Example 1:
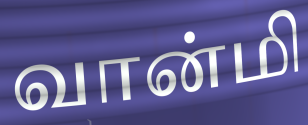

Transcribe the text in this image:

வான்மி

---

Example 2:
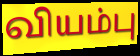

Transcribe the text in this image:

வியம்பு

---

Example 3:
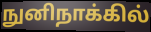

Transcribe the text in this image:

நுனிநாக்கில்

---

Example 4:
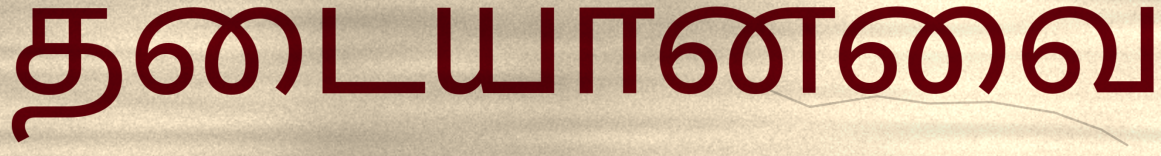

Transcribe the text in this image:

தடையானவை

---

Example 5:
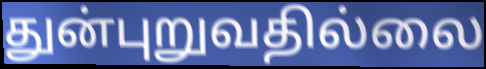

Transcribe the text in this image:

துன்புறுவதில்லை